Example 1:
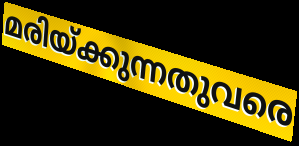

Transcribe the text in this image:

മരിയ്ക്കുന്നതുവരെ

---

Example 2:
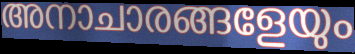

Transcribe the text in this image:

അനാചാരങ്ങളേയും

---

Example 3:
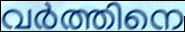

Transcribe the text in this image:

വർത്തിനെ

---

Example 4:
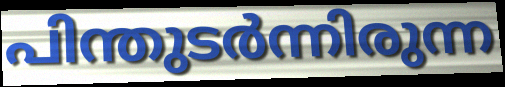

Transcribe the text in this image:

പിന്തുടർന്നിരുന്ന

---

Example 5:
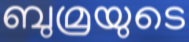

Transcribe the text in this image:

ബുമ്രയുടെ